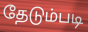
தேடும்படி